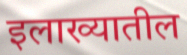
इलाख्यातील